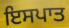
ਇਸਪਾਤ